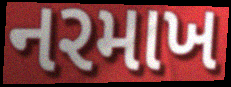
નરમાખ